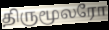
திருமூலரோ